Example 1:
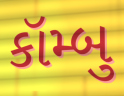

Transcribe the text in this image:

કૉમ્બુ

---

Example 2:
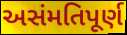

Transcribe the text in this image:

અસંમતિપૂર્ણ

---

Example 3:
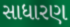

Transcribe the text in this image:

સાધારણ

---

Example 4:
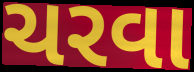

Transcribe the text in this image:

ચરવા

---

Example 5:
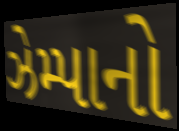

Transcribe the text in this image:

ઝેમ્પાનો